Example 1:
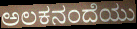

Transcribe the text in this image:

ಅಲಕನಂದೆಯು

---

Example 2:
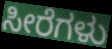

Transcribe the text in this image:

ಸೀರೆಗಳು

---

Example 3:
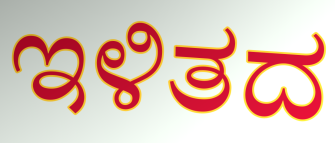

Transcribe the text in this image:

ಇಳಿತದ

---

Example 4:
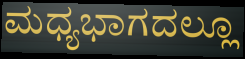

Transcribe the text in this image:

ಮಧ್ಯಭಾಗದಲ್ಲೂ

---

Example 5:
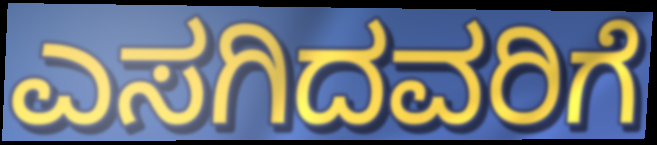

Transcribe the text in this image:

ಎಸಗಿದವರಿಗೆ